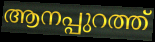
ആനപ്പുറത്ത്